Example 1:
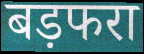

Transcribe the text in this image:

बड़फरा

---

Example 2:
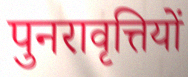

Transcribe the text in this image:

पुनरावृत्तियों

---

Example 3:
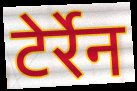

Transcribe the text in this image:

टेर्रेन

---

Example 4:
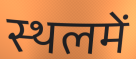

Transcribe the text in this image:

स्थलमें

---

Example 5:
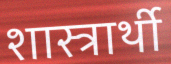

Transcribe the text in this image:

शास्त्रार्थी